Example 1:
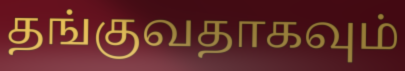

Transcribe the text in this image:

தங்குவதாகவும்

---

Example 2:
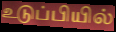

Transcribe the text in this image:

உடுப்பியில்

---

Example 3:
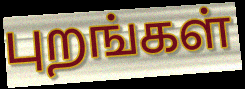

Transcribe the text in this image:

புறங்கள்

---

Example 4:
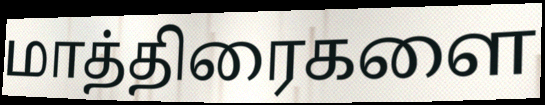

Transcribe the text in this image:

மாத்திரைகளை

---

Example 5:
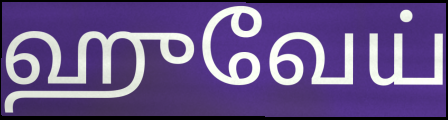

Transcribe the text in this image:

ஹுவேய்